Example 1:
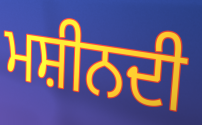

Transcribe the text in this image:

ਮਸ਼ੀਨਦੀ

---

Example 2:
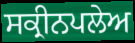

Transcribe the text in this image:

ਸਕ੍ਰੀਨਪਲੇਅ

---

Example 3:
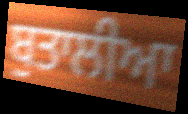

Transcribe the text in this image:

ਬੁਤਾਲੀਆ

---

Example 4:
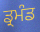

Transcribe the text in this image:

ਡ੍ਰਮੰਡ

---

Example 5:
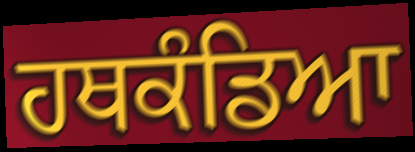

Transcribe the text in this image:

ਹਥਕੰਡਿਆ